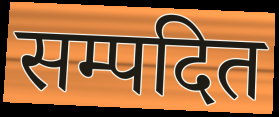
सम्पदित